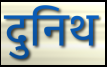
दुनिथ